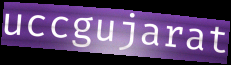
uccgujarat